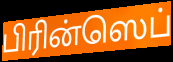
பிரின்ஸெப்